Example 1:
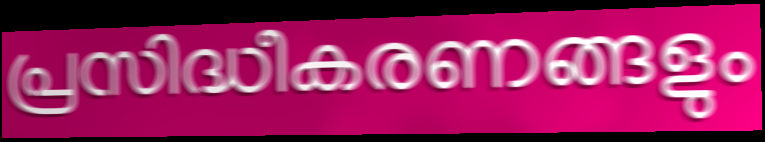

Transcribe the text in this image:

പ്രസിദ്ധീകരണങ്ങളും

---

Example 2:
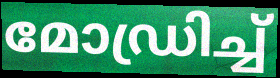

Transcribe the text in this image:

മോഡ്രിച്ച്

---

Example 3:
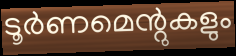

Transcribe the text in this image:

ടൂർണമെന്റുകളും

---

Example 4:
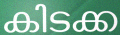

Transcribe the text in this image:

കിടക്ക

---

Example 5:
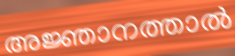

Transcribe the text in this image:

അജ്ഞാനത്താൽ